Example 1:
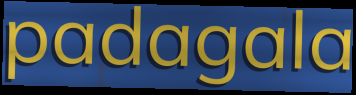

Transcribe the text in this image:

padagala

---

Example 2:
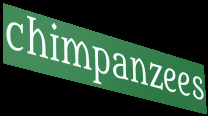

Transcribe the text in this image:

chimpanzees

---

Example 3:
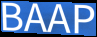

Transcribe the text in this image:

BAAP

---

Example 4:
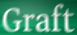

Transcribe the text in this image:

Graft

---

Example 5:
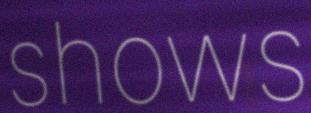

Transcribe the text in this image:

shows